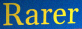
Rarer